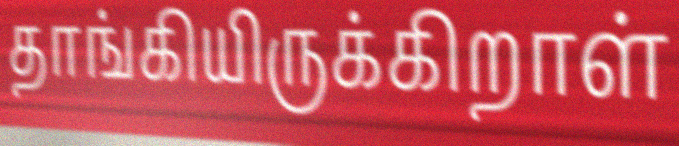
தாங்கியிருக்கிறாள்